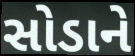
સોડાને